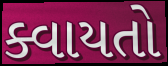
ક્વાયતો